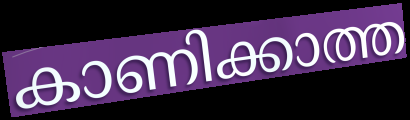
കാണിക്കാത്ത